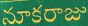
నూకరాజు